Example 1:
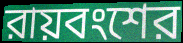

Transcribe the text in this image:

রায়বংশের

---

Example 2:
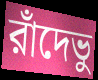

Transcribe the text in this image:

রাঁদেভু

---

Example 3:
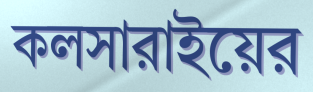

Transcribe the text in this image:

কলসারাইয়ের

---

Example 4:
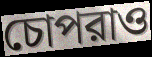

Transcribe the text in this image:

চোপরাও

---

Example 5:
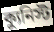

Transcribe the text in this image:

ক্যুনিস্ট